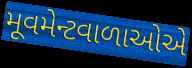
મૂવમેન્ટવાળાઓએ